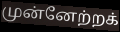
முன்னேற்றக்